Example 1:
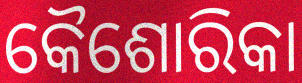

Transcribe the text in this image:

କୈଶୋରିକା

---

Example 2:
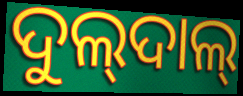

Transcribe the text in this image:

ଦୁଲ୍‍ଦାଲ୍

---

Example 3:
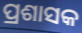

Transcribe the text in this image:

ପ୍ରଶାସକ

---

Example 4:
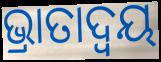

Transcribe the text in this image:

ଭ୍ରାତାଦ୍ୱୟ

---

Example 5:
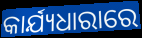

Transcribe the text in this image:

କାର୍ଯ୍ୟଧାରାରେ